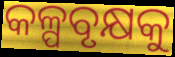
କଳ୍ପବୃକ୍ଷକୁ